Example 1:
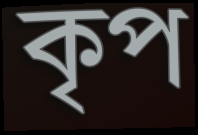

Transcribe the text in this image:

কৃপ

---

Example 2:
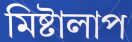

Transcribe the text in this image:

মিষ্টালাপ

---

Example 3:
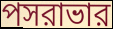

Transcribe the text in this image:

পসরাভার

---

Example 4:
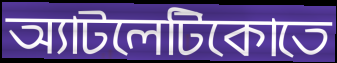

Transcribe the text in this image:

অ্যাটলেটিকোতে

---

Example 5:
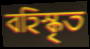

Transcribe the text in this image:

বহিস্কৃত